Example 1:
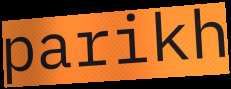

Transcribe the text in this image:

parikh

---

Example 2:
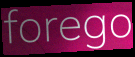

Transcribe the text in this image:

forego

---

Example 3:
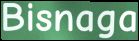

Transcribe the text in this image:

Bisnaga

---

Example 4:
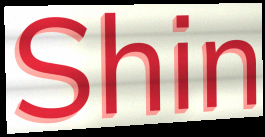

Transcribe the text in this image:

Shin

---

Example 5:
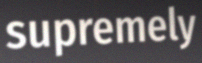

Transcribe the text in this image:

supremely